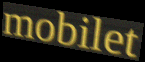
mobilet